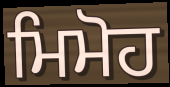
ਮਿਮੋਹ